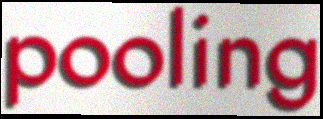
pooling